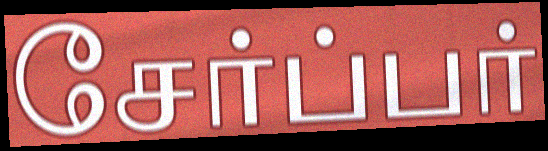
சேர்ப்பர்